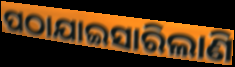
ପଠାଯାଇସାରିଲାଣି